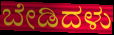
ಬೇಡಿದಳು